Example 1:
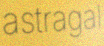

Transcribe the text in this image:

astragal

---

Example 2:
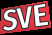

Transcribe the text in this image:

SVE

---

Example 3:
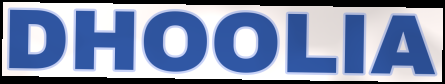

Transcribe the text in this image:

DHOOLIA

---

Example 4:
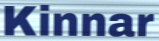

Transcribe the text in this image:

Kinnar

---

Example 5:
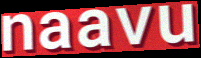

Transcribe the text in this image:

naavu